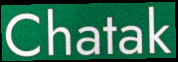
Chatak